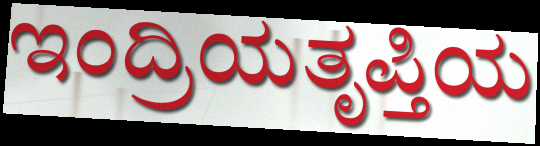
ಇಂದ್ರಿಯತೃಪ್ತಿಯ